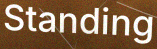
Standing